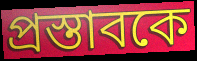
প্রস্তাবকে